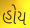
હોય